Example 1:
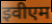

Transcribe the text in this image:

इवीएम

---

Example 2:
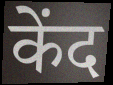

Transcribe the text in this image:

केंद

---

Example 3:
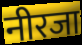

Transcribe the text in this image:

नीरजा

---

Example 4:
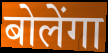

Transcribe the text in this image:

बोलेंगा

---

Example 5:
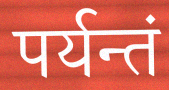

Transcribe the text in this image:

पर्यन्तं